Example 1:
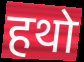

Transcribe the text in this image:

हथो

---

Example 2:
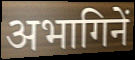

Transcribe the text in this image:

अभागिनें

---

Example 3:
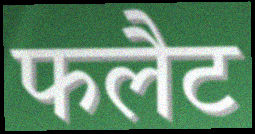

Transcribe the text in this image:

फलैट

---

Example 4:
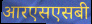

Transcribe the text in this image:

आरएसएसबी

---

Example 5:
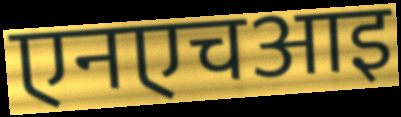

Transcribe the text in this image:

एनएचआइ